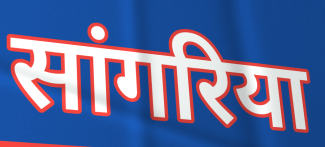
सांगरिया